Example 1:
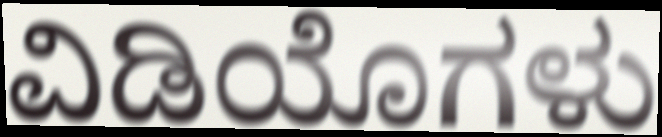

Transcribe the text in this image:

ವಿಡಿಯೊಗಳು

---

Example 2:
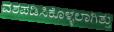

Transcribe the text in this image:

ವಶಪಡಿಸಿಕೊಳ್ಳಲಾಗಿತ್ತು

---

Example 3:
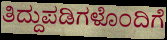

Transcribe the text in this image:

ತಿದ್ದುಪಡಿಗಳೊಂದಿಗೆ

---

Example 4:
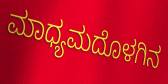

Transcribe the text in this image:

ಮಾಧ್ಯಮದೊಳಗಿನ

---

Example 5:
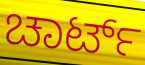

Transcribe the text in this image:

ಚಾರ್ಟ್